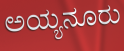
ಅಯ್ಯನೂರು